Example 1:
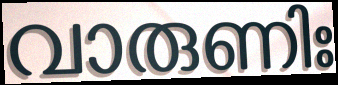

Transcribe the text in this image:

വാരുണിഃ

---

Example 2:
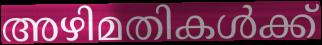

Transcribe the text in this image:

അഴിമതികൾക്ക്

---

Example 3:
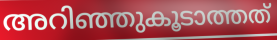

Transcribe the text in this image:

അറിഞ്ഞുകൂടാത്തത്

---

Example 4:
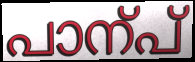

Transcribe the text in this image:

പാന്പ്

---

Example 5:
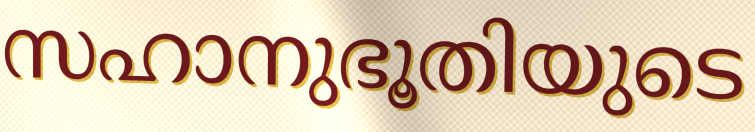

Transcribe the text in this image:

സഹാനുഭൂതിയുടെ